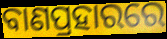
ବାଣପ୍ରହାରରେ